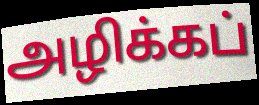
அழிக்கப்